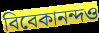
বিবেকানন্দও